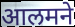
आलमने